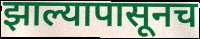
झाल्यापासूनच